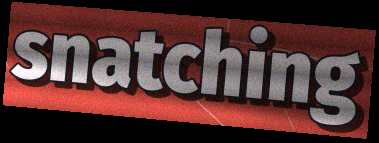
snatching